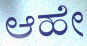
ಆಹೇ